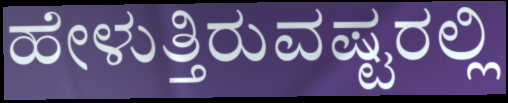
ಹೇಳುತ್ತಿರುವಷ್ಟರಲ್ಲಿ